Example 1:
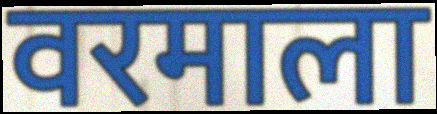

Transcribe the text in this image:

वरमाला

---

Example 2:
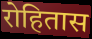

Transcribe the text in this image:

रोहितास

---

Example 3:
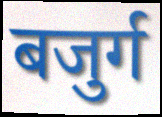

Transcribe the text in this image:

बजुर्ग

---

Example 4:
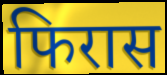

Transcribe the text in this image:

फिरास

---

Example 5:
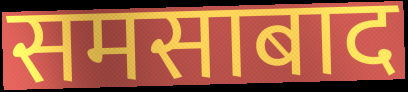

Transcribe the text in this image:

समसाबाद